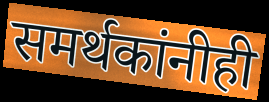
समर्थकांनीही